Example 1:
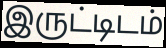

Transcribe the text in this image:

இருட்டிடம்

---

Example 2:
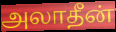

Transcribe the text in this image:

அலாதீன்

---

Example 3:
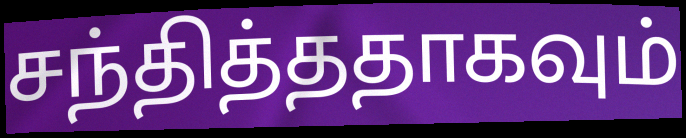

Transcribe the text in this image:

சந்தித்ததாகவும்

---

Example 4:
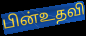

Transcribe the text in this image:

பின்உதவி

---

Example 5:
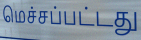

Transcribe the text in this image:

மெச்சப்பட்டது